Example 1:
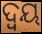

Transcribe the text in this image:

ଦ୍ୱୟ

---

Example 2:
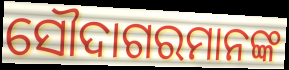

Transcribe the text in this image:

ସୌଦାଗରମାନଙ୍କ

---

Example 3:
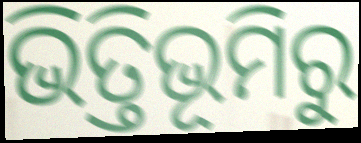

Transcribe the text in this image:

ଭିତ୍ତିଭୂମିରୁ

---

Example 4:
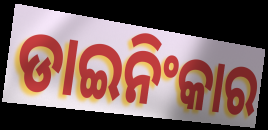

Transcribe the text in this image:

ଡାଇନିଂକାର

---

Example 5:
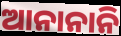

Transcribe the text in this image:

ଆନାନାନି